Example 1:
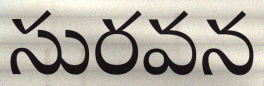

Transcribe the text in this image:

సురవన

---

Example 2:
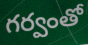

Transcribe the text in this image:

గర్వంతో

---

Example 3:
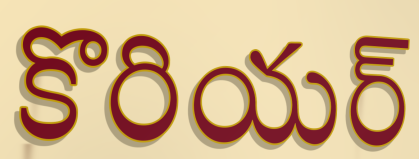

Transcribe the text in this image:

కొరియర్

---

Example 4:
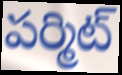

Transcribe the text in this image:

పర్మిట్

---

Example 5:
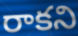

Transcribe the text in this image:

రాకని